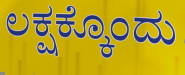
ಲಕ್ಷಕ್ಕೊಂದು